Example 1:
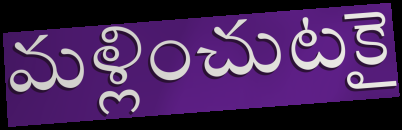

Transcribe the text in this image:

మళ్లించుటకై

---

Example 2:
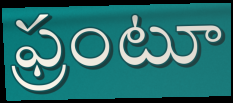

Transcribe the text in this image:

ఫ్రంటూ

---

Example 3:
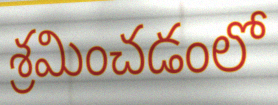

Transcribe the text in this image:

శ్రమించడంలో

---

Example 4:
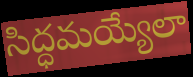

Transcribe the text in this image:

సిద్ధమయ్యేలా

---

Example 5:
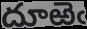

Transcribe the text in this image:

దూఱెఁ